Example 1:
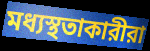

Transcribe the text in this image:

মধ্যস্থতাকারীরা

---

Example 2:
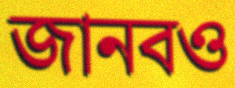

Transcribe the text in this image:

জানবও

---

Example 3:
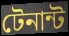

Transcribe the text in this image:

টেনান্ট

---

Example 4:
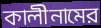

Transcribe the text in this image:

কালীনামের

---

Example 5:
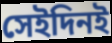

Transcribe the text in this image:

সেইদিনই